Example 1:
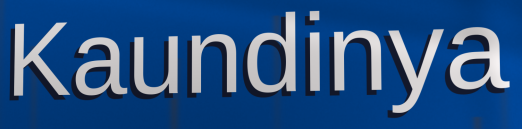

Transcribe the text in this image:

Kaundinya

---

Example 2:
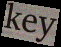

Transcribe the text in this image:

key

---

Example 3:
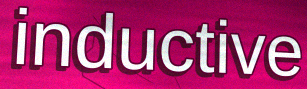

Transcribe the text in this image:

inductive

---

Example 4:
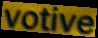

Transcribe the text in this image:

votive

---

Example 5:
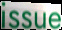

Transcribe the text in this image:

issue